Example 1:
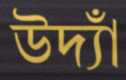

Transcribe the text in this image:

উদ্যাঁ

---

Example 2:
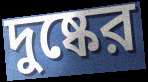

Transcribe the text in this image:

দুষ্কের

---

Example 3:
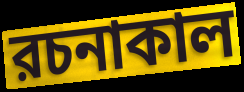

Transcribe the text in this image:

রচনাকাল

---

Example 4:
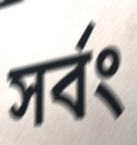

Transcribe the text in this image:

সর্বং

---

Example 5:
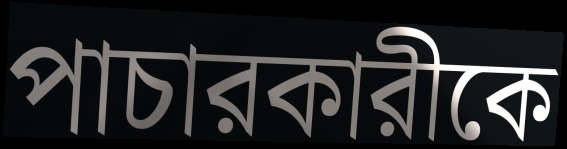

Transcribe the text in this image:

পাচারকারীকে